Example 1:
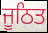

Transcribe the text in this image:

ਜੂਠਿਤ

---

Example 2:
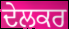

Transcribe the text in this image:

ਦੇਲਕਰ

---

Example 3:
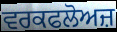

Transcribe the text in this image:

ਵਰਕਫਲੋਅਜ਼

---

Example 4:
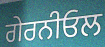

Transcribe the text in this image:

ਗੇਰਨੀਓਲ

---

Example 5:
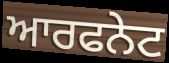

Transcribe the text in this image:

ਆਰਫਨੇਟ